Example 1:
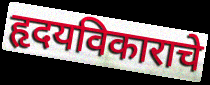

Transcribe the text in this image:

हृदयविकाराचे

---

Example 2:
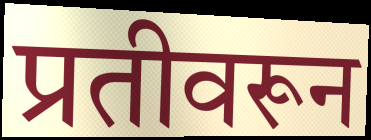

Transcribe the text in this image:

प्रतीवरून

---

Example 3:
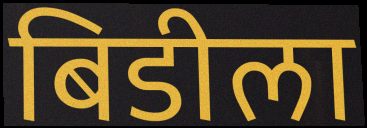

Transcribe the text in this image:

बिडीला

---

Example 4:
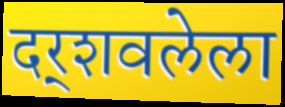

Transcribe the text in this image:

दर्शवलेला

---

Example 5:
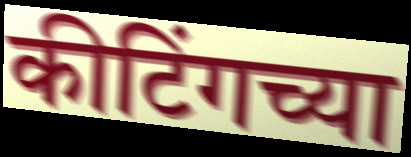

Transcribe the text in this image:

कीटिंगच्या